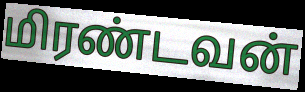
மிரண்டவன்